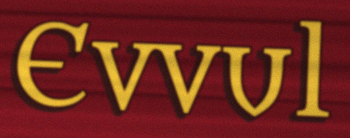
Evvul